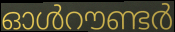
ഓൾറൗണ്ടർ